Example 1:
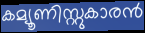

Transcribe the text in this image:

കമ്യൂണിസ്റ്റുകാരൻ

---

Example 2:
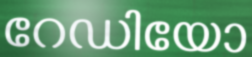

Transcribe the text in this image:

റേഡിയോ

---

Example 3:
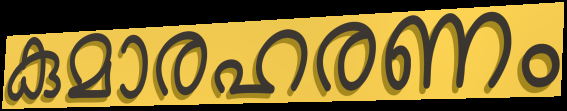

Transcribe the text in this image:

കുമാരഹരണം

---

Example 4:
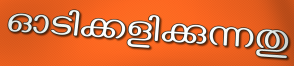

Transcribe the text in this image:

ഓടിക്കളിക്കുന്നതു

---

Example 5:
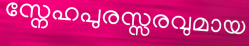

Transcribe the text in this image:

സ്നേഹപുരസ്സരവുമായ